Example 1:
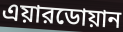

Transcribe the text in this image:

এয়ারডোয়ান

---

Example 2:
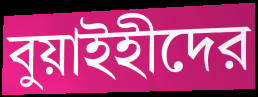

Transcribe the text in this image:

বুয়াইহীদের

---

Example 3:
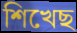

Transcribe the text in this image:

শিখেছ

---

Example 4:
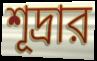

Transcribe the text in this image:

শূদ্রার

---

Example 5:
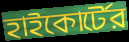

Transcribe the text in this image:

হাইকোর্টের